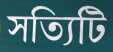
সত্যিটি